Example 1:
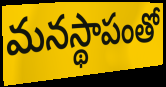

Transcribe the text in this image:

మనస్థాపంతో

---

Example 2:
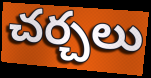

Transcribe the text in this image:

చర్చలు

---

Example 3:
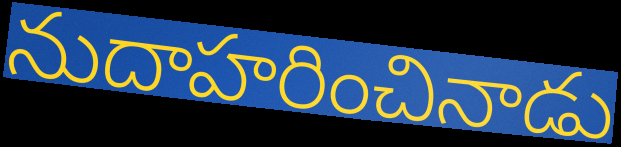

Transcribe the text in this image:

నుదాహరించినాడు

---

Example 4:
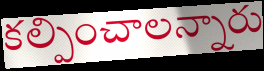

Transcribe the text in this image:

కల్పించాలన్నారు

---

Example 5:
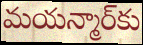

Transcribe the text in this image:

మయన్మార్‌కు